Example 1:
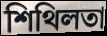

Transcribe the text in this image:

শিথিলতা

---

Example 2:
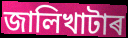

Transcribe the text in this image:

জালিখাটাৰ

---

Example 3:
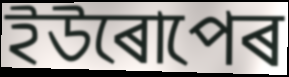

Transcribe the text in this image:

ইউৰোপেৰ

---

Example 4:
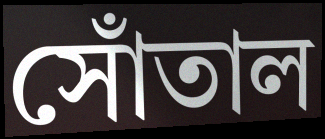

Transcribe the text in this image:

সোঁতাল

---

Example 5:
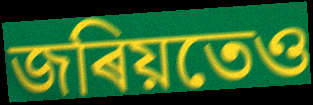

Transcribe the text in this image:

জৰিয়তেও